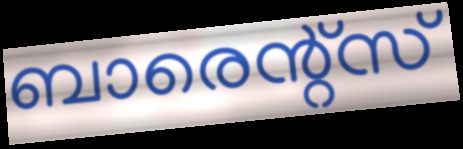
ബാരെന്റ്സ്